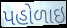
પહોળાઇ